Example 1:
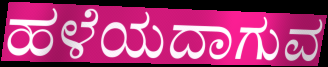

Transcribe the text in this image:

ಹಳೆಯದಾಗುವ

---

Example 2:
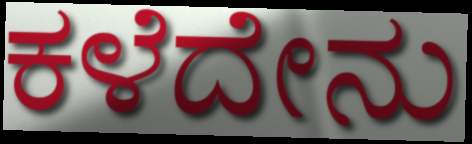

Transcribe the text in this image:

ಕಳೆದೇನು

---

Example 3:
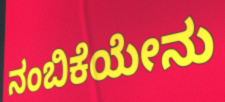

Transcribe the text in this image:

ನಂಬಿಕೆಯೇನು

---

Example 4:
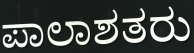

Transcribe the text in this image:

ಪಾಲಾಶತರು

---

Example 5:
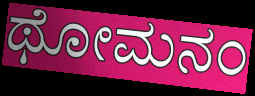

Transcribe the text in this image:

ಥೋಮನಂ